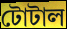
টোটাল